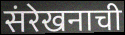
संरेखनाची